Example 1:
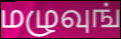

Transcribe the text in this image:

மழுவுங்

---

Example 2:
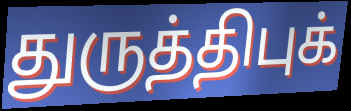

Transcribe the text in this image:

துருத்திபுக்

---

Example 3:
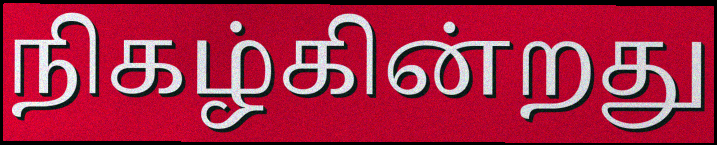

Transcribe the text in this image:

நிகழ்கின்றது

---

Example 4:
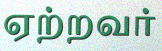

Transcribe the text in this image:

ஏற்றவர்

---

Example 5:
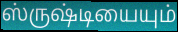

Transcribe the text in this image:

ஸ்ருஷ்டியையும்